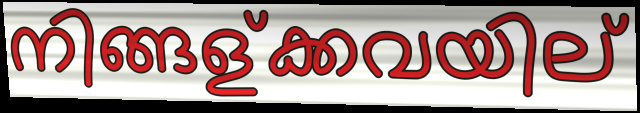
നിങ്ങള്ക്കവയില്